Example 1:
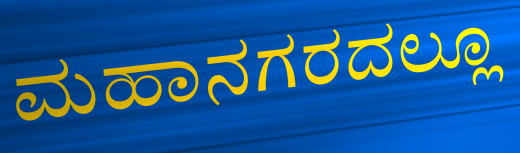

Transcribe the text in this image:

ಮಹಾನಗರದಲ್ಲೂ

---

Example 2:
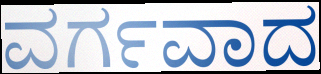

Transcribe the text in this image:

ವರ್ಗವಾದ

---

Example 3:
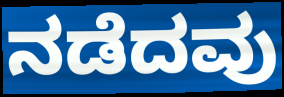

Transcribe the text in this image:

ನಡೆದವು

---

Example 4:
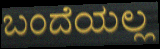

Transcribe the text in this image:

ಬಂದೆಯಲ್ಲ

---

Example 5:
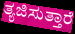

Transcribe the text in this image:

ತ್ಯಜಿಸುತ್ತಾರೆ